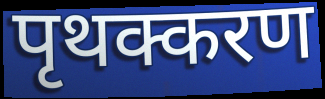
पृथक्करण